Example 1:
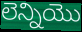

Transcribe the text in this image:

లెన్నియొ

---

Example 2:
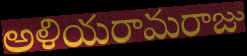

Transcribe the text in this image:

అళియరామరాజు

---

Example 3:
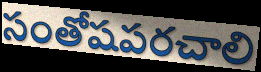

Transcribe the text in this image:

సంతోషపరచాలి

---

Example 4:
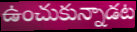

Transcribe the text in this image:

ఉంచుకున్నాడట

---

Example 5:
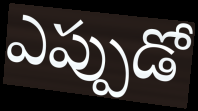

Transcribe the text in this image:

ఎప్పుడో